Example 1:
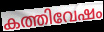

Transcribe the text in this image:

കത്തിവേഷം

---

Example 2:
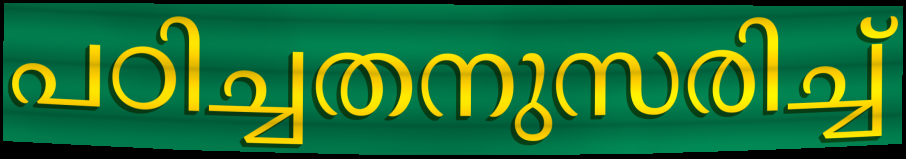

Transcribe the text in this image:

പഠിച്ചതനുസരിച്ച്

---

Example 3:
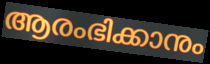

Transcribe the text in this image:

ആരംഭിക്കാനും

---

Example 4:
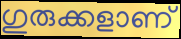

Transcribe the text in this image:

ഗുരുക്കളാണ്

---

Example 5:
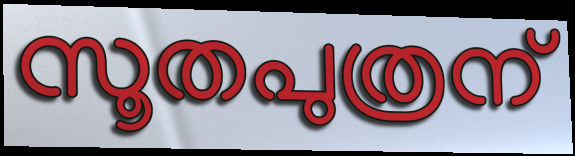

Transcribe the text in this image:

സൂതപുത്രന്